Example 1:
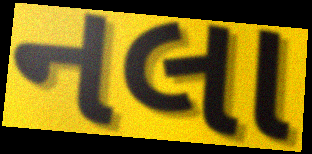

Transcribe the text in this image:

નલા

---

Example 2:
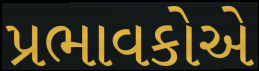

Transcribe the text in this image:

પ્રભાવકોએ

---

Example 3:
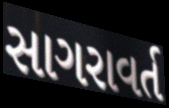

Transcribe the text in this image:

સાગરાવર્ત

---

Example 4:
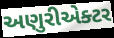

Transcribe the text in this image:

અણુરીએક્ટર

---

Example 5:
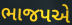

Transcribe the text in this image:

ભાજપએ